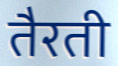
तैरती